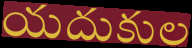
యదుకుల